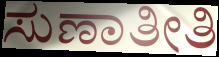
ಸುಣಾತೀತಿ